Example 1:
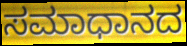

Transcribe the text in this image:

ಸಮಾಧಾನದ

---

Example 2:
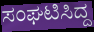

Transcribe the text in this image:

ಸಂಘಟಿಸಿದ್ದ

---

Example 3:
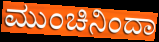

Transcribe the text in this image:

ಮುಂಚಿನಿಂದಾ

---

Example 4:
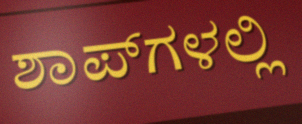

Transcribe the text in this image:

ಶಾಪ್‌ಗಳಲ್ಲಿ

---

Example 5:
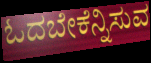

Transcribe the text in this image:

ಓದಬೇಕೆನ್ನಿಸುವ